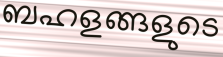
ബഹളങ്ങളുടെ